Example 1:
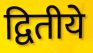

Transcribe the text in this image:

द्वितीये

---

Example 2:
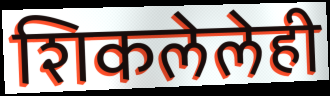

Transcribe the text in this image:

शिकलेलेही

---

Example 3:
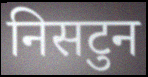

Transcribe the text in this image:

निसटुन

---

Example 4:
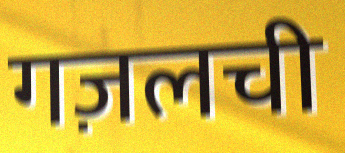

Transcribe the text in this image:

गज़लची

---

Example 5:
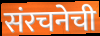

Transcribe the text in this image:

संरचनेची